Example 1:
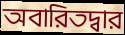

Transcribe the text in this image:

অবারিতদ্বার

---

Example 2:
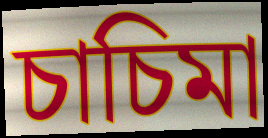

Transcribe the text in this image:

চাচিমা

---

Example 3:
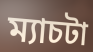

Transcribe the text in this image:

ম্যাচটা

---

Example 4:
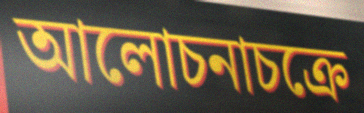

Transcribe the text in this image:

আলোচনাচক্রে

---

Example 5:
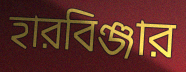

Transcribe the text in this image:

হারবিঞ্জার